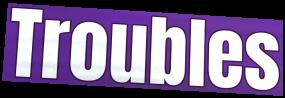
Troubles